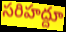
సరిహద్దూ